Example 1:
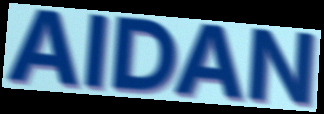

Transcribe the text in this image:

AIDAN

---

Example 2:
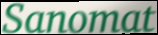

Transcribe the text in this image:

Sanomat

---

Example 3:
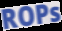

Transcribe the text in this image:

ROPs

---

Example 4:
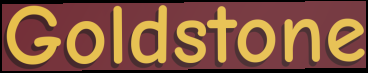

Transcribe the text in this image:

Goldstone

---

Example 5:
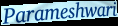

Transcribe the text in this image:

Parameshwari